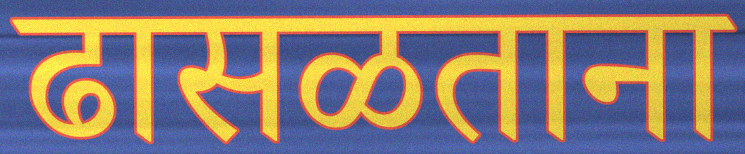
ढासळताना